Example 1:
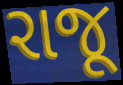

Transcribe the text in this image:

રાજૂ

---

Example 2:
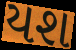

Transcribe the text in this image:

યશ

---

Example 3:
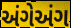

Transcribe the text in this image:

અંગેઅંગ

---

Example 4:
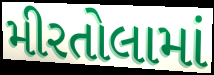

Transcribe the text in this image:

મીરતોલામાં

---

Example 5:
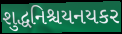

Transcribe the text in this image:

શુદ્ધનિશ્ચયનયકર